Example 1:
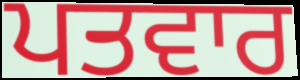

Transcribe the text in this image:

ਪਤਵਾਰ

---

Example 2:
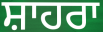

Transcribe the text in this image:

ਸ਼ਾਹਰਾ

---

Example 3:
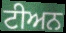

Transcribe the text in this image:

ਟੀਅਨ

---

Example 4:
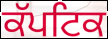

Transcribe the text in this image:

ਕੱਪਟਿਕ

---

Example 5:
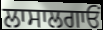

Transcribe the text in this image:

ਲਾਸਾਲਗਾਓਂ